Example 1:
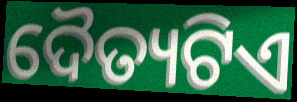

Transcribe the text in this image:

ଦୈତ୍ୟଟିଏ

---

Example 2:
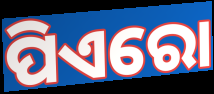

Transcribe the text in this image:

ପିଏରୋ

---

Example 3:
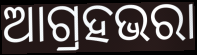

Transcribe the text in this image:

ଆଗ୍ରହଭରା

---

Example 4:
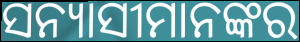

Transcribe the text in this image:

ସନ୍ୟାସୀମାନଙ୍କର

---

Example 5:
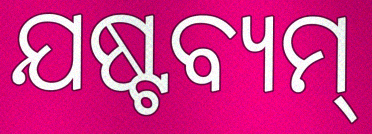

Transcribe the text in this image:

ଯଷ୍ଟବ୍ୟମ୍